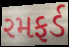
રમફર્ડ